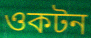
ওকটন